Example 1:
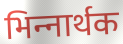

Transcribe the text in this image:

भिन्नार्थक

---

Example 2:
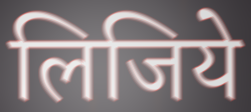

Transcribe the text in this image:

लिजिये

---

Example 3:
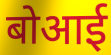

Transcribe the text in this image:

बोआई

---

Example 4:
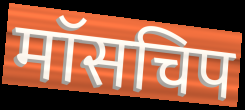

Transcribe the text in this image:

मॉसचिप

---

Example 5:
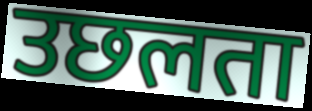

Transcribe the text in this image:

उछलता